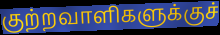
குற்றவாளிகளுக்குச்